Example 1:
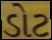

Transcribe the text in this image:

ડોટ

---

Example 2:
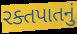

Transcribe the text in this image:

રક્તપાતનું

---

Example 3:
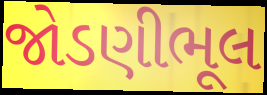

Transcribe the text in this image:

જોડણીભૂલ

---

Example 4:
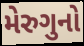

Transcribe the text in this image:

મેરુગુનો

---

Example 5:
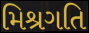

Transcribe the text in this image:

મિશ્રગતિ